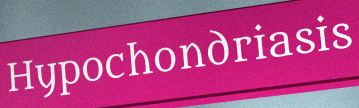
Hypochondriasis